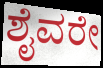
ಶೈವರೇ